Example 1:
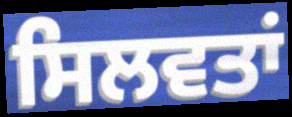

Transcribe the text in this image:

ਸਿਲਵਤਾਂ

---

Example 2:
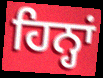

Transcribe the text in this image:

ਹਿਨ੍ਹਾਂ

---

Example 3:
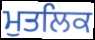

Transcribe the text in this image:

ਮੁਤਲਿਕ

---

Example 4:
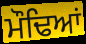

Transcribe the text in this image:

ਮੌਢਿਆਂ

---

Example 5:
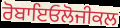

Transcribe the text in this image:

ਰੋਬਾਇਓਲੋਜੀਕਲ